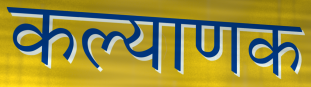
कल्याणक